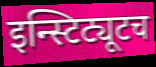
इन्स्टिट्यूटच